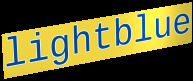
lightblue